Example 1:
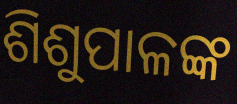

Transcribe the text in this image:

ଶିଶୁପାଳଙ୍କ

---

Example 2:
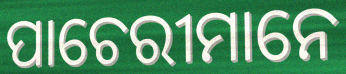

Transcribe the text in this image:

ପାଚେରୀମାନେ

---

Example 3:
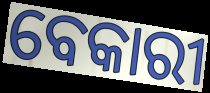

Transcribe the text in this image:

ବେକାରୀ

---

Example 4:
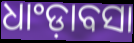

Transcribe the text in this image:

ଧାଂଡ଼ାବସା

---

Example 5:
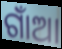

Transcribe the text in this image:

ଗାଁଆ